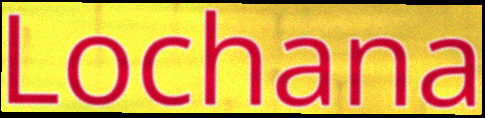
Lochana